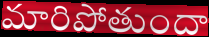
మారిపోతుందా